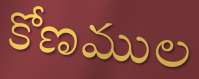
కోణముల